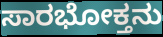
ಸಾರಭೋಕ್ತನು